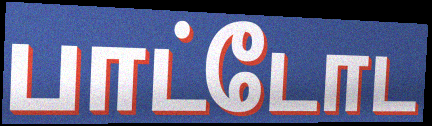
பாட்டோட